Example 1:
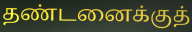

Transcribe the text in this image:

தண்டனைக்குத்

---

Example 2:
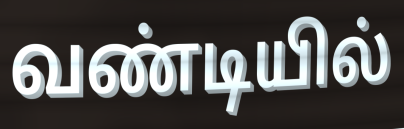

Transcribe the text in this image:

வண்டியில்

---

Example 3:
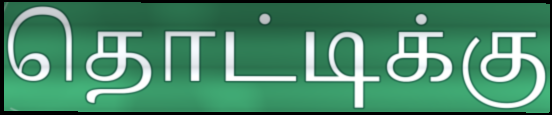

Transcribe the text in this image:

தொட்டிக்கு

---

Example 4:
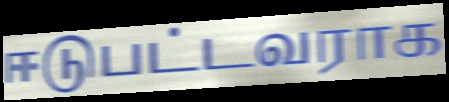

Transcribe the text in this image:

ஈடுபட்டவராக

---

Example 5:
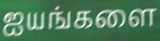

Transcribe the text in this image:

ஐயங்களை